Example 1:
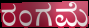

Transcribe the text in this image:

ರಂಗಮೆ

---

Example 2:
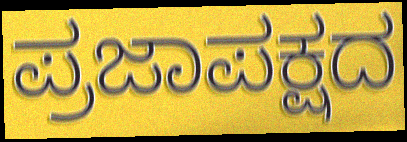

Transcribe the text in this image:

ಪ್ರಜಾಪಕ್ಷದ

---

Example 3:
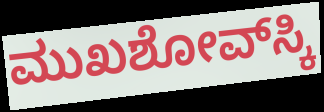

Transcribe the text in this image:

ಮುಖಶೋವ್‌ಸ್ಕಿ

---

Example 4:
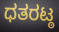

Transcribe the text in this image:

ಧತರಟ್ಠ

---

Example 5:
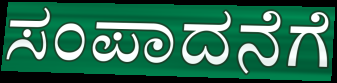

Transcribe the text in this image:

ಸಂಪಾದನೆಗೆ